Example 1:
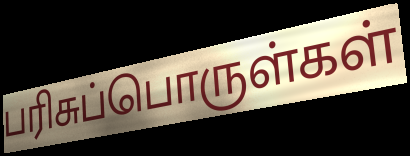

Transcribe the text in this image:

பரிசுப்பொருள்கள்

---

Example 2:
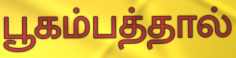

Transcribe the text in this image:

பூகம்பத்தால்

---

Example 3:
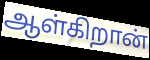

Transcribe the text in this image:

ஆள்கிறான்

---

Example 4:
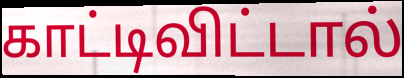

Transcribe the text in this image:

காட்டிவிட்டால்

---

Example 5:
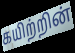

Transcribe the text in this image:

கயிற்றின்